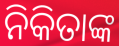
ନିକିତାଙ୍କ